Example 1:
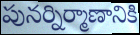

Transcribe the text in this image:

పునర్నిర్మాణానికి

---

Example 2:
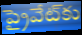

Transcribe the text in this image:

ప్రైవేట్‌కు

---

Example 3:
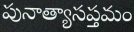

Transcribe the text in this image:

పునాత్యాసప్తమం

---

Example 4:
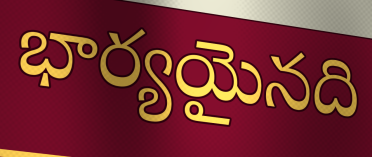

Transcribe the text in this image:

భార్యయైనది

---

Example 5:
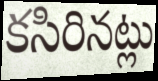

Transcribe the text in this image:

కసిరినట్లు